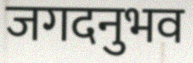
जगदनुभव